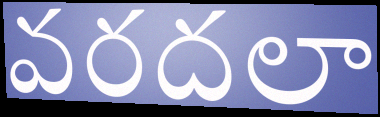
వరదలా